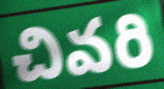
చివరి